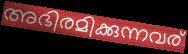
അഭിരമിക്കുന്നവര്